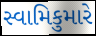
સ્વામિકુમારે